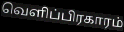
வெளிப்பிரகாரம்